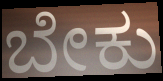
ಬೇಕು